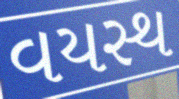
વયસ્થ